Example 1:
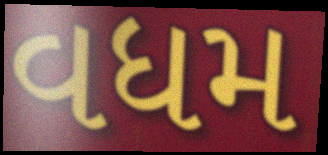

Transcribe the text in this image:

વધમ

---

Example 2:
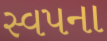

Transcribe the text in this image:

સ્વપના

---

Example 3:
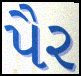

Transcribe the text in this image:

પૈર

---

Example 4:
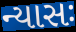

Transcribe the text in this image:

ન્યાસઃ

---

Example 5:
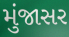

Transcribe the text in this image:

મુંજાસર